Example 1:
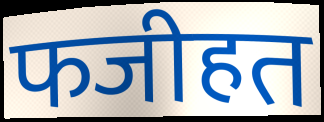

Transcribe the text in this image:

फजीहत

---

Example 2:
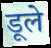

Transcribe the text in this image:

डूले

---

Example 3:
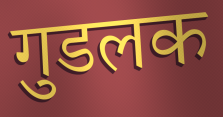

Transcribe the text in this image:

गुडलक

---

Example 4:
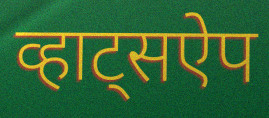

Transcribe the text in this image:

व्हाट्सऐप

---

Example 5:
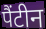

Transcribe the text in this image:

पैंटीन